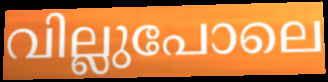
വില്ലുപോലെ